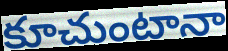
కూచుంటానా